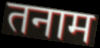
तनाम